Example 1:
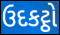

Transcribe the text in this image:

ઉદકટ્ઠો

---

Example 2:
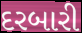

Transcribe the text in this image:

દરબારી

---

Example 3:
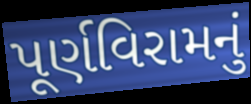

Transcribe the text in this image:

પૂર્ણવિરામનું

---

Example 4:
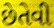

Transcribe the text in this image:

છેતેવી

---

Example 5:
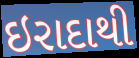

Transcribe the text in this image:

ઇરાદાથી